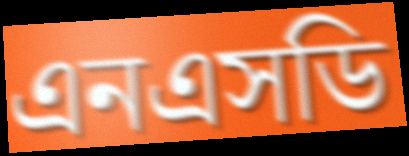
এনএসডি